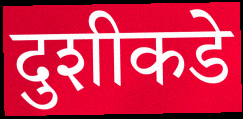
दुशीकडे